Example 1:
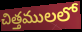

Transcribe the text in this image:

చిత్తములలో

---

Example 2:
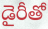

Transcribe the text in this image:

డైరీతో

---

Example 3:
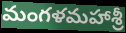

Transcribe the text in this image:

మంగళమహాశ్రీ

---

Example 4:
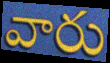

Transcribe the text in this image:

వారు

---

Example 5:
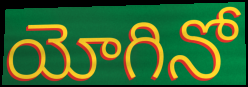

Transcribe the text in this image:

యోగినో